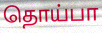
தொய்பா